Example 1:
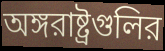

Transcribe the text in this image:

অঙ্গরাষ্ট্রগুলির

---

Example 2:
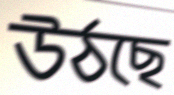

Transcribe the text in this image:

উঠছে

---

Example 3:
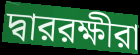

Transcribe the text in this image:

দ্বাররক্ষীরা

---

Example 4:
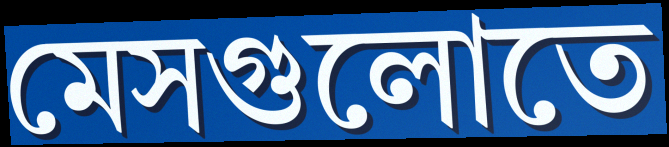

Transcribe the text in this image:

মেসগুলোতে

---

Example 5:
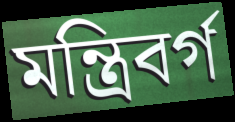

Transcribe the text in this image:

মন্ত্রিবর্গ